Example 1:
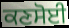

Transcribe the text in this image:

ਕਣਸੋਈ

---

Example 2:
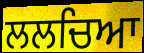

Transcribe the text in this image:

ਲਲਚਿਆ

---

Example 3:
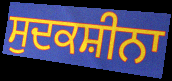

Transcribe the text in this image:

ਸੁਦਕਸ਼ੀਨਾ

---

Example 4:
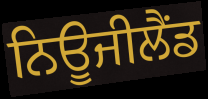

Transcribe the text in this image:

ਨਿਊਜੀਲੈਂਡ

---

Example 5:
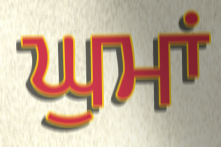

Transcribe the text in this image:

ਘੁਮਾਂ